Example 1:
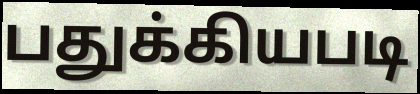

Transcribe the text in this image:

பதுக்கியபடி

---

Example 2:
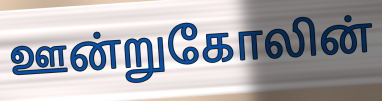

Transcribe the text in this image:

ஊன்றுகோலின்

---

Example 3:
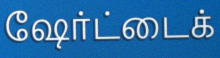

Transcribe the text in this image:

ஷேர்ட்டைக்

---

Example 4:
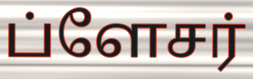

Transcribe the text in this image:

ப்ளேசர்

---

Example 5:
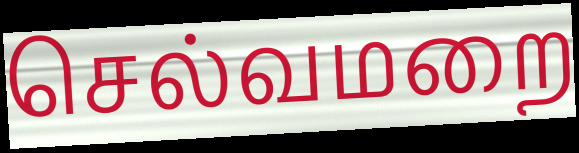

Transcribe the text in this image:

செல்வமறை